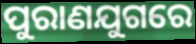
ପୁରାଣଯୁଗରେ